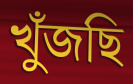
খুঁজছি